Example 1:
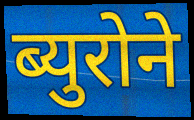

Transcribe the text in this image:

ब्युरोने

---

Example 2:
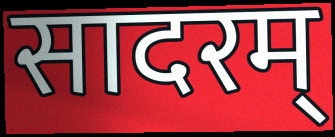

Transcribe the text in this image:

सादरम्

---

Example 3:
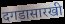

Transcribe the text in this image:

दगडासारखी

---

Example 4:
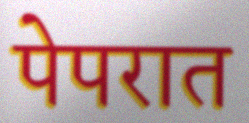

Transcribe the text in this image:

पेपरात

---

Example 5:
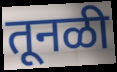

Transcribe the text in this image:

तूनळी